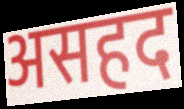
असहद